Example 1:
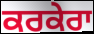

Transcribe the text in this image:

ਕਰਕੇਰਾ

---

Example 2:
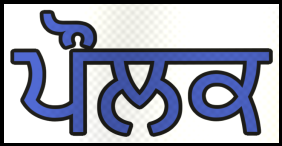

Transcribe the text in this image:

ਪੌਲਕ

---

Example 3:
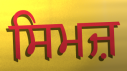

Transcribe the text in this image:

ਸਿਮਜ਼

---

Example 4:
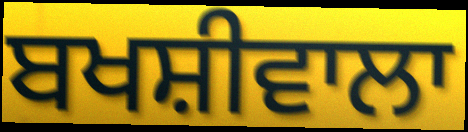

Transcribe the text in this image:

ਬਖਸ਼ੀਵਾਲਾ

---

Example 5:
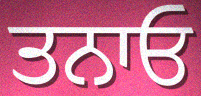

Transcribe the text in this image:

ਤਨਾਓ